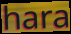
hara